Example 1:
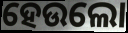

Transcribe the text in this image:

ହେଉଲୋ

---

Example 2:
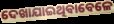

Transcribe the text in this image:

ଦେଖାଯାଇଥିବାବେଳେ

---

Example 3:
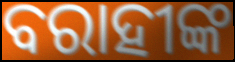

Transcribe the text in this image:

ବରାହୀଙ୍କ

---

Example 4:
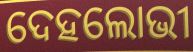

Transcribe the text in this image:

ଦେହଲୋଭୀ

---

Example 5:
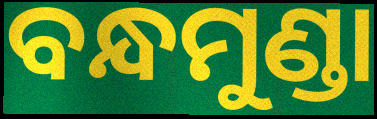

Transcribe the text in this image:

ବନ୍ଧମୁଣ୍ଡା